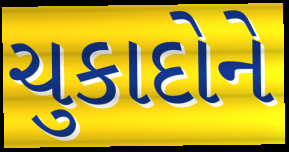
ચુકાદોને